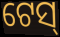
ଟେସ୍